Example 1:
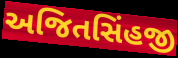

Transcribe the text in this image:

અજિતસિંહજી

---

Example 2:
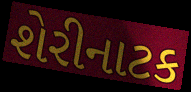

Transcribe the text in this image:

શેરીનાટક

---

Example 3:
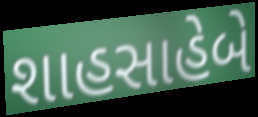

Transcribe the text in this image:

શાહસાહેબે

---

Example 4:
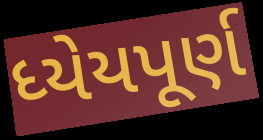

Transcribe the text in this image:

ધ્યેયપૂર્ણ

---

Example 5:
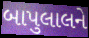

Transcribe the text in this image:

બાપુલાલને